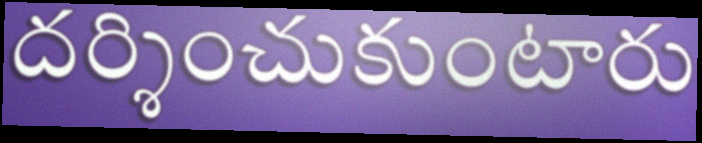
దర్శించుకుంటారు